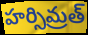
హర్సిమ్రత్